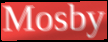
Mosby